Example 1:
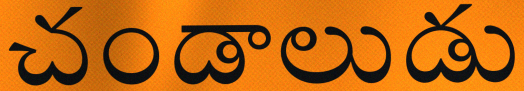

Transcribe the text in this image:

చండాలుడు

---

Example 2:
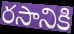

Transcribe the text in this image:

రసానికి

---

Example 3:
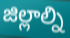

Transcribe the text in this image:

జిల్లాల్ని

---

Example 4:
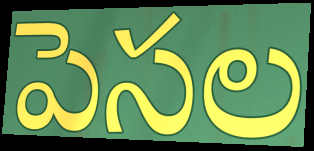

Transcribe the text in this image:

పెసల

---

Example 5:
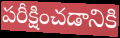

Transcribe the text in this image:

పరీక్షించడానికి